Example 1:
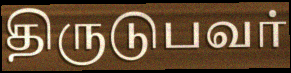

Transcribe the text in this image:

திருடுபவர்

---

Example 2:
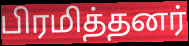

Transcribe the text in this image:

பிரமித்தனர்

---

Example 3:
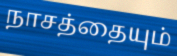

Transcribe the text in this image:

நாசத்தையும்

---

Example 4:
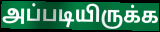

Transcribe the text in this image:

அப்படியிருக்க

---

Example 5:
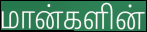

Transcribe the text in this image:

மான்களின்